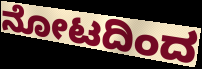
ನೋಟದಿಂದ